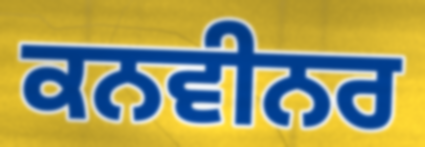
ਕਨਵੀਨਰ